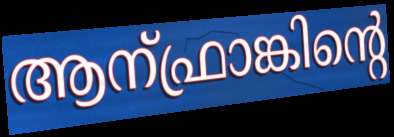
ആന്ഫ്രാങ്കിന്റെ